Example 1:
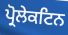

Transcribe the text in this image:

ਪ੍ਰੋਲੇਕਟਿਨ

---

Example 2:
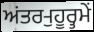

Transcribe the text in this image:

ਅਂਤਰ੍ਮੁਹੂਰ੍ਤਮੇਂ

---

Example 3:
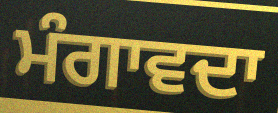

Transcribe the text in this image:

ਮੰਗਾਵਦਾ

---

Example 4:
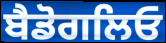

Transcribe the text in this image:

ਬੈਡੋਗਲਿਓ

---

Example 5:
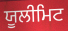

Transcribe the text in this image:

ਯੂਲੀਮਿਟ